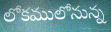
లోకములోనున్న